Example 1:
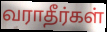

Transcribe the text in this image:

வராதீர்கள்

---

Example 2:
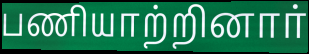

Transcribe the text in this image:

பணியாற்றினார்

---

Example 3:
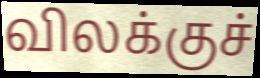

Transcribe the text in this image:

விலக்குச்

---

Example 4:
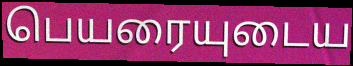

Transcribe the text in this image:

பெயரையுடைய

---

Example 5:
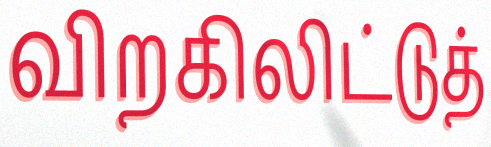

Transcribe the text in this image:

விறகிலிட்டுத்